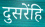
दुसरेंहि